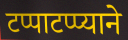
टप्पाटप्प्याने